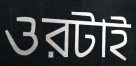
ওরটাই